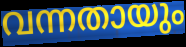
വന്നതായും